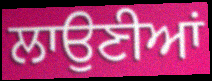
ਲਾਉਣੀਆਂ